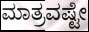
ಮಾತ್ರವಷ್ಟೇ